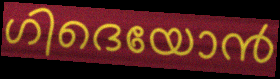
ഗിദെയോൻ